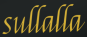
sullalla